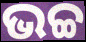
ଭଚ୍ଚ